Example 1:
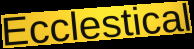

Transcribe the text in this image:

Ecclestical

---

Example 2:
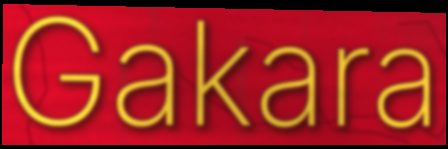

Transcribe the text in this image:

Gakara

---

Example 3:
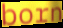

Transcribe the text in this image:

born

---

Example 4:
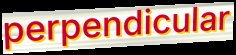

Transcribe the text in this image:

perpendicular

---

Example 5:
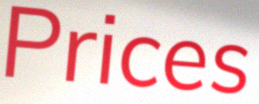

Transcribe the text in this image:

Prices